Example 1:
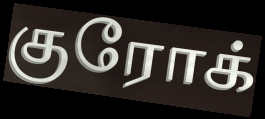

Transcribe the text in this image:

குரோக்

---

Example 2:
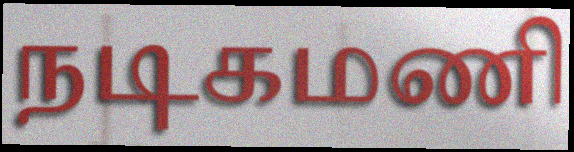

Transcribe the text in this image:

நடிகமணி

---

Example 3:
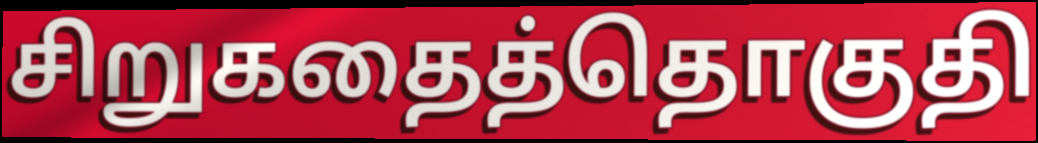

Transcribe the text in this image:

சிறுகதைத்தொகுதி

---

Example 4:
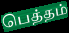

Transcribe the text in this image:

பெத்தம்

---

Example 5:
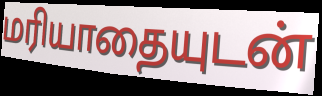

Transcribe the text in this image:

மரியாதையுடன்